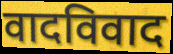
वादविवाद